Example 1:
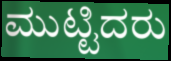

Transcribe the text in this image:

ಮುಟ್ಟಿದರು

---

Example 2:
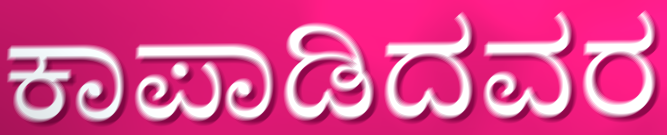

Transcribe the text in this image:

ಕಾಪಾಡಿದವರ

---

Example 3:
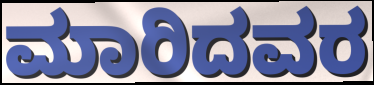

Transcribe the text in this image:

ಮಾರಿದವರ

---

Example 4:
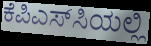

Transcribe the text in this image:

ಕೆಪಿಎಸ್‌ಸಿಯಲ್ಲಿ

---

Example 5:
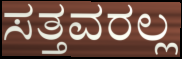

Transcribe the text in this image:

ಸತ್ತವರಲ್ಲ